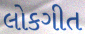
લોકગીત